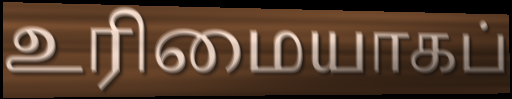
உரிமையாகப்